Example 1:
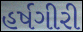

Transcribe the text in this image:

હર્ષગીરી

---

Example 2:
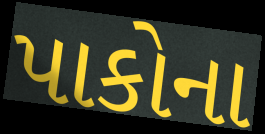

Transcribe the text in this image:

પાકોના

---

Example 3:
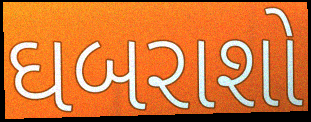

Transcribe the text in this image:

ઘબરાશો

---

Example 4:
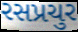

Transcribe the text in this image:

રસપ્રચુર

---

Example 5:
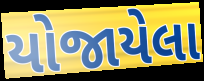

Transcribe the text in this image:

યોજાયેલા